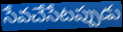
సేవచేసేటప్పుడు